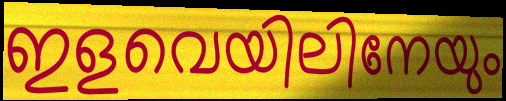
ഇളവെയിലിനേയും